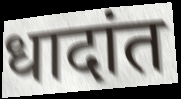
धादांत